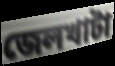
জেলখাটা